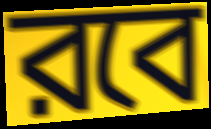
রবে